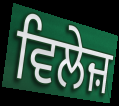
ਵਿਲੇਜ਼